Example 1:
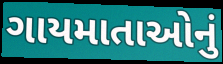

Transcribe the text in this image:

ગાયમાતાઓનું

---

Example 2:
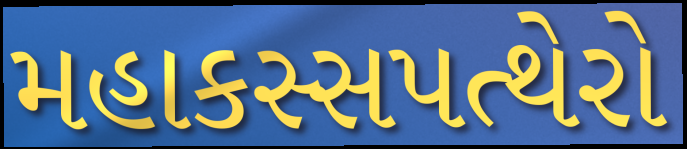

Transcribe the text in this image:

મહાકસ્સપત્થેરો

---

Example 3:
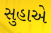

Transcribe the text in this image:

સુહાએ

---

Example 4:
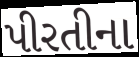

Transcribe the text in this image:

પીરતીના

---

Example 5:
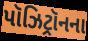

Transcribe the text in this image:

પૉઝિટ્રૉનના